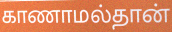
காணாமல்தான்